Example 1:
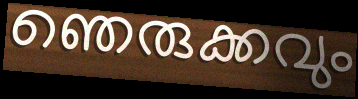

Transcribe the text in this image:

ഞെരുക്കവും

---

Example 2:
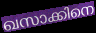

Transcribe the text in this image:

ഖസാക്കിനെ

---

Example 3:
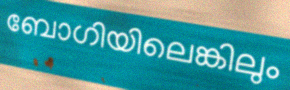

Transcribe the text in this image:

ബോഗിയിലെങ്കിലും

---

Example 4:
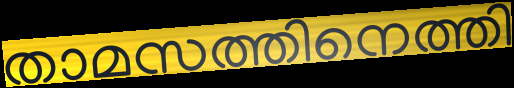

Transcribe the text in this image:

താമസത്തിനെത്തി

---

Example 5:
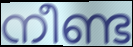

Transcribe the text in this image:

നീണ്ട